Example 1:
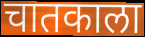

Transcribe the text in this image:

चातकाला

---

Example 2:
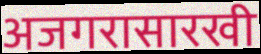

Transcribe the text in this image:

अजगरासारखी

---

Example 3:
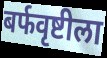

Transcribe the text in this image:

बर्फवृष्टीला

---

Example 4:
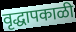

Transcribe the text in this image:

वृद्धापकाळी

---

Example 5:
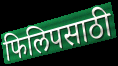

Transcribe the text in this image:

फिलिपसाठी